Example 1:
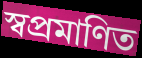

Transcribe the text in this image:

স্বপ্রমাণিত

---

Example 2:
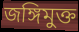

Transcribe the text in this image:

জঙ্গিমুক্ত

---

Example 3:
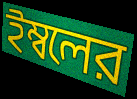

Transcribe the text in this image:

ইম্বলের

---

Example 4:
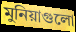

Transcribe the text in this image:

মুনিয়াগুলো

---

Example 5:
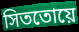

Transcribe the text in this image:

সিততোয়ে